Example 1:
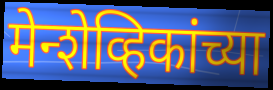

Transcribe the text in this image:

मेन्शेव्हिकांच्या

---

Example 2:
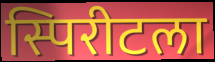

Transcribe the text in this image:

स्पिरीटला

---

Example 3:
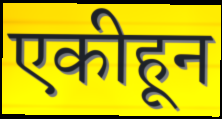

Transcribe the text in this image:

एकीहून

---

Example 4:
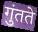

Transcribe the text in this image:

गुंतते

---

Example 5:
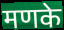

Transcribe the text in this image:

मणके